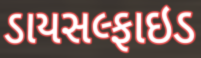
ડાયસલ્ફાઇડ